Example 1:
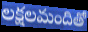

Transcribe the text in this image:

లక్షలమందితో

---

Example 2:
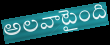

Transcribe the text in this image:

అలవాటైంది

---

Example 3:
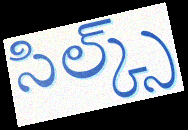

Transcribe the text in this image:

సిల్క్స్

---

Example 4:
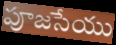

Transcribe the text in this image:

పూజసేయు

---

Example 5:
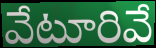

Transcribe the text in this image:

వేటూరివే